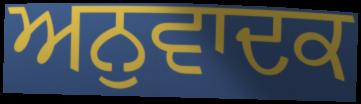
ਅਨੁਵਾਦਕ